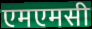
एमएमसी